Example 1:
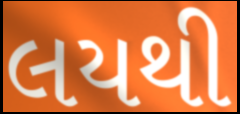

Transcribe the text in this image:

લયથી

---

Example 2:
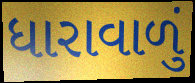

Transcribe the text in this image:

ધારાવાળું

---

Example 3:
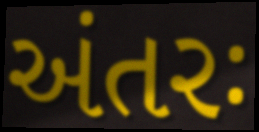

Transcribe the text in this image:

અંતરઃ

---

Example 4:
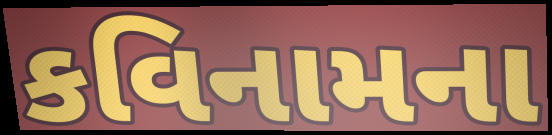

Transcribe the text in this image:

કવિનામના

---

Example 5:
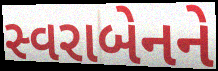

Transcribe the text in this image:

સ્વરાબેનને